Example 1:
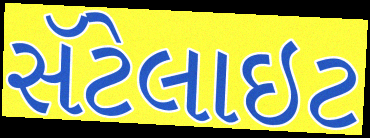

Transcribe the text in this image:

સૅટેલાઇટ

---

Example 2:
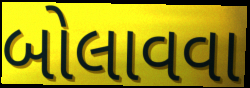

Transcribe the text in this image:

બોલાવવા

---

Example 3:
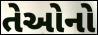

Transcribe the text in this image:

તેઓનો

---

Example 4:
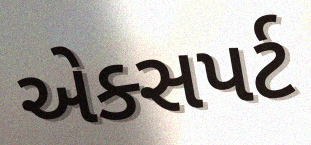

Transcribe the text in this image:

એક્સપર્ટ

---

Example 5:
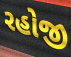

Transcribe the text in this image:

રહોજી